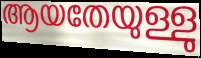
ആയതേയുള്ളു